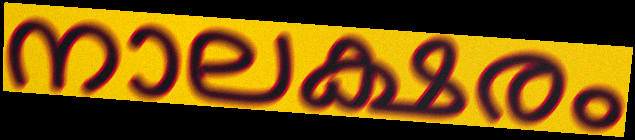
നാലക്ഷരം